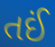
તઈં